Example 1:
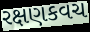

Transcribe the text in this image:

રક્ષણકવચ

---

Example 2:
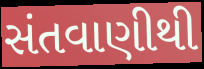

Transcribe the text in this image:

સંતવાણીથી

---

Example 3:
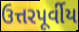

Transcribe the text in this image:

ઉત્તરપૂર્વીય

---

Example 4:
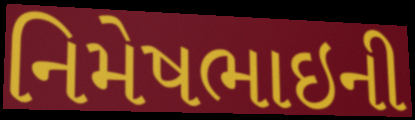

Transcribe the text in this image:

નિમેષભાઇની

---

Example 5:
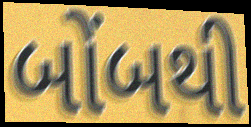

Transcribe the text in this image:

બોંબથી